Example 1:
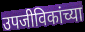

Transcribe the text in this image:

उपजीविकांच्या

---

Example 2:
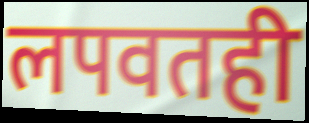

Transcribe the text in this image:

लपवतही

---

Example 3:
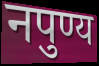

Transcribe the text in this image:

नपुण्य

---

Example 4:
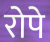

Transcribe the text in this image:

रोपे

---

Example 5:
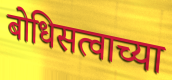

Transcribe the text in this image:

बोधिसत्वाच्या